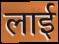
लाई